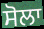
ਸੋਲਾ